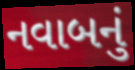
નવાબનું